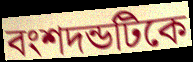
বংশদন্ডটিকে